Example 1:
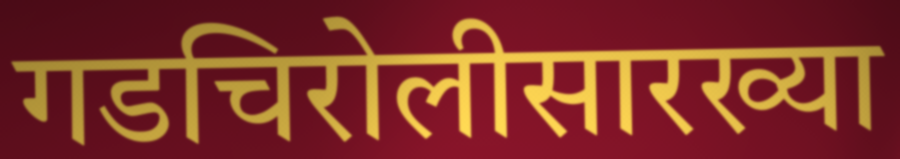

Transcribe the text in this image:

गडचिरोलीसारख्या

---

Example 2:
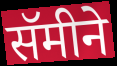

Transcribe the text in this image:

सॅमीने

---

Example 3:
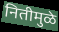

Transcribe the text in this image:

नितीमुळे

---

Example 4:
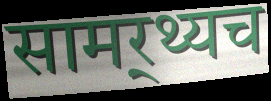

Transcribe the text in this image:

सामर्थ्यच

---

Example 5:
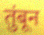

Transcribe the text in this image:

तुंबून